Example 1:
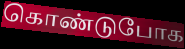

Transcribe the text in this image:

கொண்டுபோக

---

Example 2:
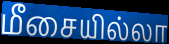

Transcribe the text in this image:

மீசையில்லா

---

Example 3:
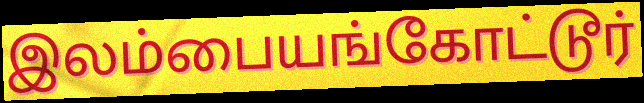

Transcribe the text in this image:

இலம்பையங்கோட்டூர்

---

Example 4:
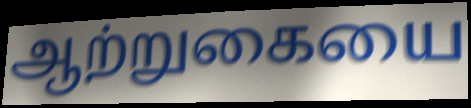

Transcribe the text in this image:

ஆற்றுகையை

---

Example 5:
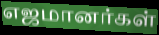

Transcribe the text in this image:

எஜமானர்கள்